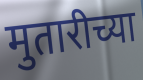
मुतारीच्या